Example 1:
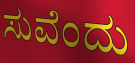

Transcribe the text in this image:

ಸುವೆಂದು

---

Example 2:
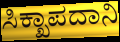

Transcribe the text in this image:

ಸಿಕ್ಖಾಪದಾನಿ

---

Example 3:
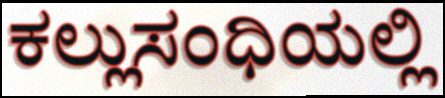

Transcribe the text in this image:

ಕಲ್ಲುಸಂಧಿಯಲ್ಲಿ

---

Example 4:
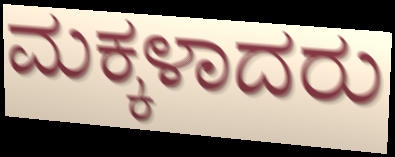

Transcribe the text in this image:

ಮಕ್ಕಳಾದರು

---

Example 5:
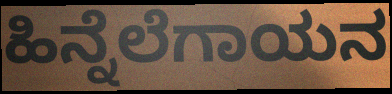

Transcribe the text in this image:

ಹಿನ್ನೆಲೆಗಾಯನ